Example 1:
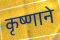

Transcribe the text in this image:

कृष्णाने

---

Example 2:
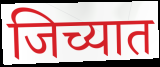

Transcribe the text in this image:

जिच्यात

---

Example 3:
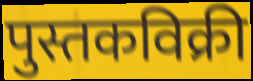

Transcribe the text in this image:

पुस्तकविक्री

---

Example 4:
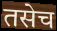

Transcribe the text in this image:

तसेच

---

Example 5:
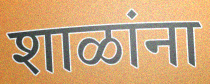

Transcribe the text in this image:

शाळांना